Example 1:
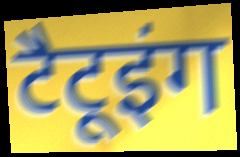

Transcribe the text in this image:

टैटूइंग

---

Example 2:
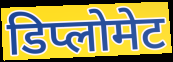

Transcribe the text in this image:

डिप्लोमेट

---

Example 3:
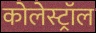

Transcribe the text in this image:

कोलेस्ट्रॉल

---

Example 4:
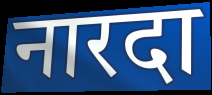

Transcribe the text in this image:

नारदा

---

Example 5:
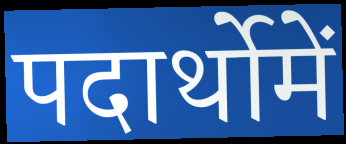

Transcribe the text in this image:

पदार्थोमें